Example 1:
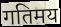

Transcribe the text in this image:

गतिमय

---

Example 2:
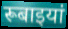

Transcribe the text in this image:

रूबाइयां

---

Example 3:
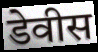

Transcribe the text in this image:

डेवीस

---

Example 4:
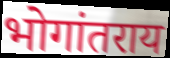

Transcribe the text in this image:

भोगांतराय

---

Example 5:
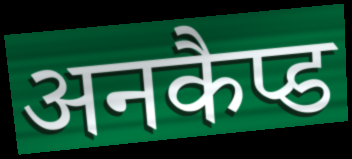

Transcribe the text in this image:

अनकैप्ड